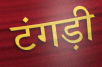
टंगड़ी